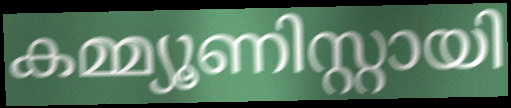
കമ്മ്യൂണിസ്റ്റായി